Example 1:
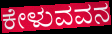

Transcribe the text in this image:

ಕೇಳುವವನ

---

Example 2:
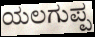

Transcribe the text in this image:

ಯಲಗುಪ್ಪ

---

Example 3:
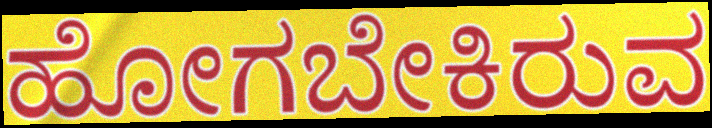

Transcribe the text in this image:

ಹೋಗಬೇಕಿರುವ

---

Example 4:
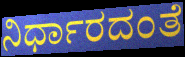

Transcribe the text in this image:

ನಿರ್ಧಾರದಂತೆ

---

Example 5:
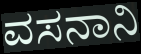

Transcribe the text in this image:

ವಸನಾನಿ